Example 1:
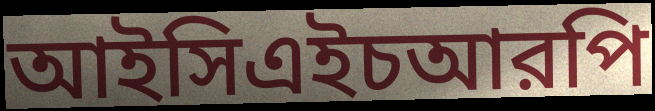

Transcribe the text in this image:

আইসিএইচআরপি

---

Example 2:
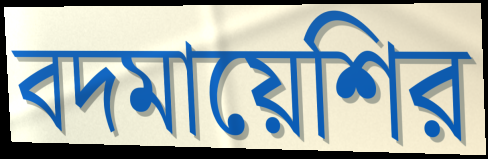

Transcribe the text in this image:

বদমায়েশির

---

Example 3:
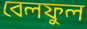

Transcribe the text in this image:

বেলফুল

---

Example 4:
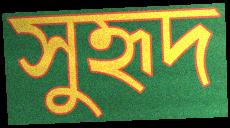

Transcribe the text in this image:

সুহৃদ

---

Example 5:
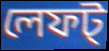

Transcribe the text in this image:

লেফট্